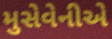
મુસેવેનીએ